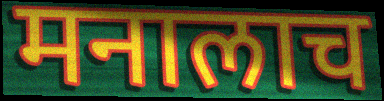
मनालाच